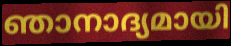
ഞാനാദ്യമായി